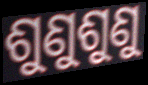
ଶୁଣୁଶୁଣୁ